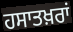
ਹਸਾਤਖ਼ਰਾਂ